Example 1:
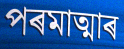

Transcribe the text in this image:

পৰমাত্মাৰ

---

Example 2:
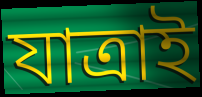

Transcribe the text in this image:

যাত্ৰাই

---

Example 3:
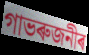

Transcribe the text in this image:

গাভৰুজনীৰ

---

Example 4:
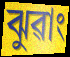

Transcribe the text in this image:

ঝুৱাং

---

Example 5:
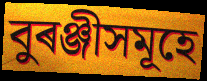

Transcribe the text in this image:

বুৰঞ্জীসমূহে